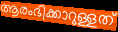
ആരംഭിക്കാറുള്ളത്